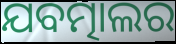
ଯବତ୍ମାଲର